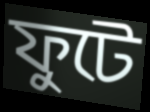
ফুটে